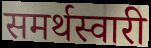
समर्थस्वारी